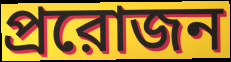
প্ররোজন